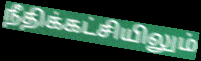
நீதிக்கட்சியிலும்